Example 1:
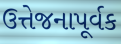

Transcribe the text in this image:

ઉત્તેજનાપૂર્વક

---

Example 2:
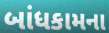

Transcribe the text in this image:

બાંધકામના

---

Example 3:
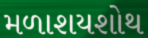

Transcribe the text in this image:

મળાશયશોથ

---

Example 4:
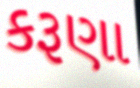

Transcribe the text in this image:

કરૂણા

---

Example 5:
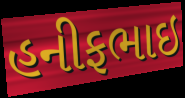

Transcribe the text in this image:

હનીફભાઇ